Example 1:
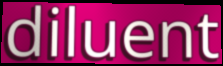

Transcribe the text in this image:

diluent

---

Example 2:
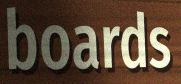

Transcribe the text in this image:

boards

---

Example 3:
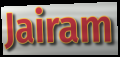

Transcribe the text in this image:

Jairam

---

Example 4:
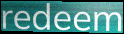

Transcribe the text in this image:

redeem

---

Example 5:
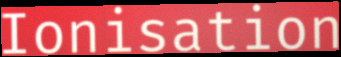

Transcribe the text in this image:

Ionisation